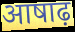
आषाढ़